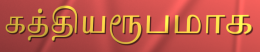
கத்தியரூபமாக